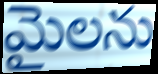
మైలను